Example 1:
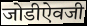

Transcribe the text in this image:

जोडीऐवजी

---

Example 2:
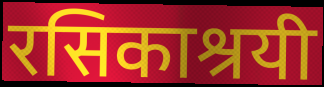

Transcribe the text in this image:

रसिकाश्रयी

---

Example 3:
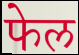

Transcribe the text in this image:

फेल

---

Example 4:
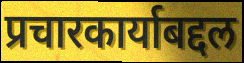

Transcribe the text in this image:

प्रचारकार्याबद्दल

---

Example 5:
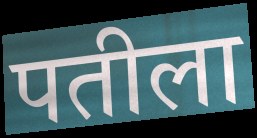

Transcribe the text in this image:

पतीला